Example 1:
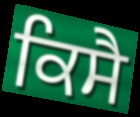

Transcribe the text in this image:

ਕਿਸੈ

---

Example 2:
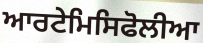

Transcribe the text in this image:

ਆਰਟੇਮਿਸਿਫੋਲੀਆ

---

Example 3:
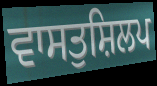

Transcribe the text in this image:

ਵਾਸਤੁਸ਼ਿਲਪ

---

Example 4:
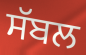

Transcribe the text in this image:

ਸੱਬਲ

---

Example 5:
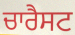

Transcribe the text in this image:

ਚਾਰੈਸਟ